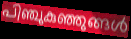
പിഞ്ചുകുഞ്ഞുങ്ങൾ